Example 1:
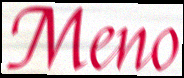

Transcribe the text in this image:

Meno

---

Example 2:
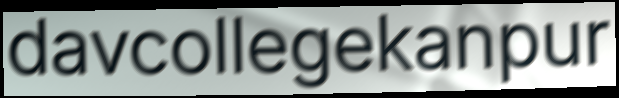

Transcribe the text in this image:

davcollegekanpur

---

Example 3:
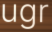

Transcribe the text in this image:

ugr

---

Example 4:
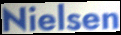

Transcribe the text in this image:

Nielsen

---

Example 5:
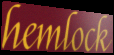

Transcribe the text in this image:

hemlock